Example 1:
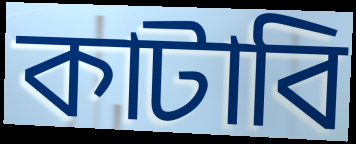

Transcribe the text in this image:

কাটাবি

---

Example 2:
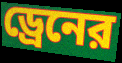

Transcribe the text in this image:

ড্রেনের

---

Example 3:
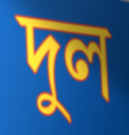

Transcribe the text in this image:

দুল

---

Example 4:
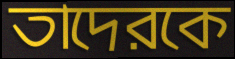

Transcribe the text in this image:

তাদেরকে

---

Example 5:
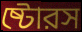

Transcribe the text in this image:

ষ্টোরস